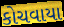
કોચવાયા